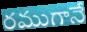
రముగానే